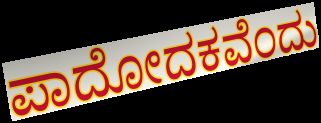
ಪಾದೋದಕವೆಂದು